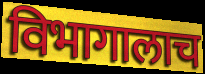
विभागालाच